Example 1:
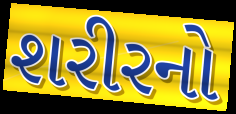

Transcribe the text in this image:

શરીરનો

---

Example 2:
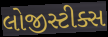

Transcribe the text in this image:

લોજીસ્ટીક્સ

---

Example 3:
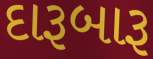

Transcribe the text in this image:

દારૂબારૂ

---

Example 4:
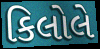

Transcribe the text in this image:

કિલોલે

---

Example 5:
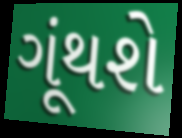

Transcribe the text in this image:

ગૂંથશે